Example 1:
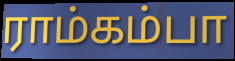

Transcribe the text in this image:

ராம்கம்பா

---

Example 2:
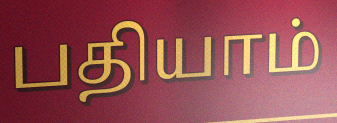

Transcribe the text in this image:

பதியாம்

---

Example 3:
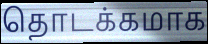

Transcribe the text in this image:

தொடக்கமாக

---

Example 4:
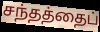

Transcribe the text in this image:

சந்தத்தைப்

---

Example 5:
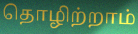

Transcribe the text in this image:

தொழிற்றாம்